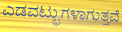
ಎಡವಟ್ಟುಗಳಾಗುತ್ತವೆ